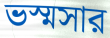
ভস্মসার